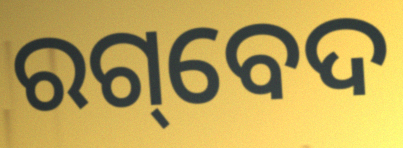
ରଗ୍‌ବେଦ